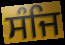
ਸੰਜਿ